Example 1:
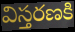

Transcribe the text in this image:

విస్తరణకి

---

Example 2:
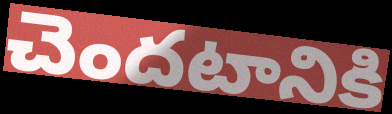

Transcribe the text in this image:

చెందటానికి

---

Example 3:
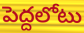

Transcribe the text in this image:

పెద్దలోటు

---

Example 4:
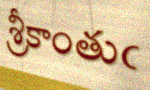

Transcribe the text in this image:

శ్రీకాంతుఁ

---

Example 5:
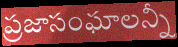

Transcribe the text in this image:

ప్రజాసంఘాలన్నీ